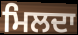
ਮਿਲਦਾ